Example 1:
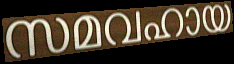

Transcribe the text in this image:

സമവഹായ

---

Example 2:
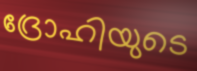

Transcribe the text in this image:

ദ്രോഹിയുടെ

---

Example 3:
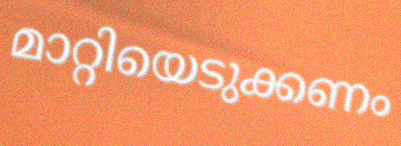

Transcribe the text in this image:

മാറ്റിയെടുക്കണം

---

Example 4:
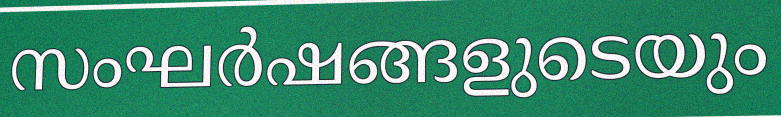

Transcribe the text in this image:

സംഘർഷങ്ങളുടെയും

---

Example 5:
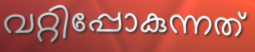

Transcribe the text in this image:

വറ്റിപ്പോകുന്നത്